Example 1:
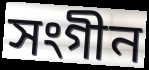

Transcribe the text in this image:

সংগীন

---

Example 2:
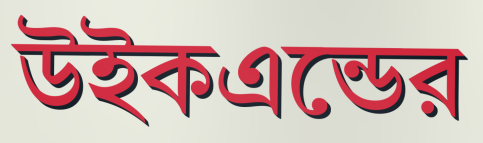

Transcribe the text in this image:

উইকএন্ডের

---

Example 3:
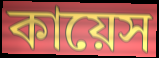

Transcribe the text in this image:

কায়েস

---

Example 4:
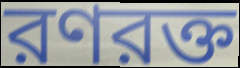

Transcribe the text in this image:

রণরক্ত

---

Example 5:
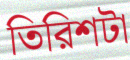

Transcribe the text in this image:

তিরিশটা